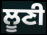
ਲੂਣੀ